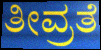
ತೀವ್ರತೆ